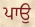
ਪਾਉ